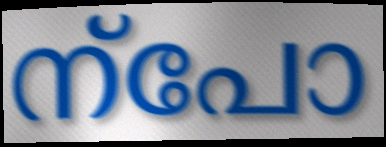
ന്പോ